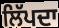
ਲਿੱਪਦਾ